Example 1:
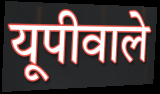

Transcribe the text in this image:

यूपीवाले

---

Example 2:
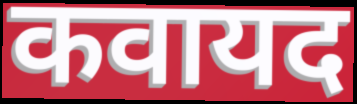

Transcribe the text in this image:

कवायद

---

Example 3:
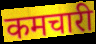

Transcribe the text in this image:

कमचारी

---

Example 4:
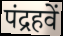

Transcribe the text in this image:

पंद्रहवें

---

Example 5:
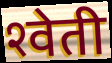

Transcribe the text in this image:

श्वेती